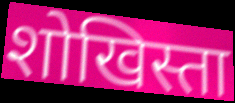
शोखिस्ता